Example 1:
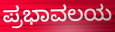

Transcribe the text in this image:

ಪ್ರಭಾವಲಯ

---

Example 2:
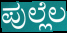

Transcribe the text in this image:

ಪುಲ್ಲೆಲ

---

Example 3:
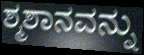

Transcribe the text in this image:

ಶ್ಮಶಾನವನ್ನು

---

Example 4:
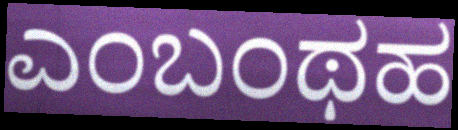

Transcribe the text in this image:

ಎಂಬಂಥಹ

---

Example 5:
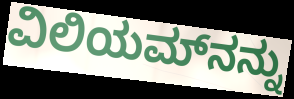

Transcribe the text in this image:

ವಿಲಿಯಮ್‌ನನ್ನು